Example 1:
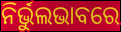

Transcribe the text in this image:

ନିର୍ଭୁଲଭାବରେ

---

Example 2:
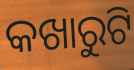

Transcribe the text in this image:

କଖାରୁଟି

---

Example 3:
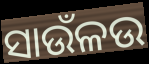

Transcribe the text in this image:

ସାଉଁଳଉ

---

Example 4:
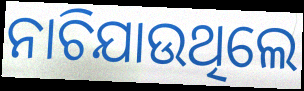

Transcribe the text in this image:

ନାଚିଯାଉଥିଲେ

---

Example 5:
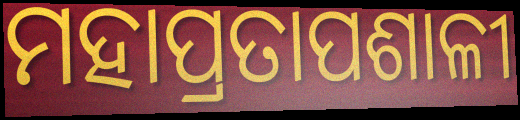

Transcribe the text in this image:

ମହାପ୍ରତାପଶାଳୀ